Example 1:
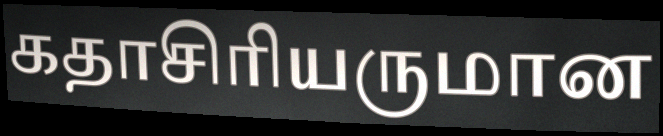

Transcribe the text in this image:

கதாசிரியருமான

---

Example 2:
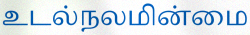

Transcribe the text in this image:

உடல்நலமின்மை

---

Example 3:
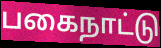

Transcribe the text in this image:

பகைநாட்டு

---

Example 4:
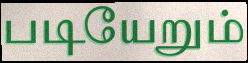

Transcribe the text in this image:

படியேறும்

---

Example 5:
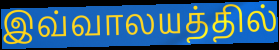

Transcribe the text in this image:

இவ்வாலயத்தில்